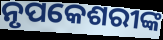
ନୃପକେଶରୀଙ୍କ